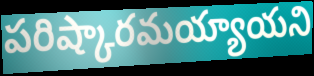
పరిష్కారమయ్యాయని